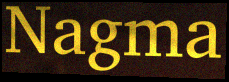
Nagma